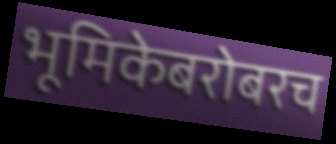
भूमिकेबरोबरच